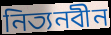
নিত্যনবীন